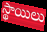
స్థాయిలు